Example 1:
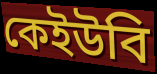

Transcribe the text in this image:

কেইউবি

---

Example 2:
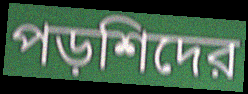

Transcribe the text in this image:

পড়শিদের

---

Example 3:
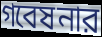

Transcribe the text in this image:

গবেষনার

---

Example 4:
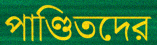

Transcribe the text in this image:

পাণ্ডিতদের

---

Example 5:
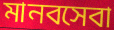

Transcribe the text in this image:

মানবসেবা